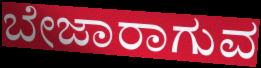
ಬೇಜಾರಾಗುವ